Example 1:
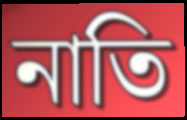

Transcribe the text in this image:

নাতি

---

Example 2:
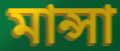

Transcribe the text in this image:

মান্সা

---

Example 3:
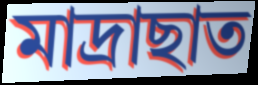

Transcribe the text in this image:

মাদ্ৰাছাত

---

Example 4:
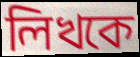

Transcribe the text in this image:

লিখকে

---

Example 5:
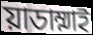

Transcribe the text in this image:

য়াডাম্মাই